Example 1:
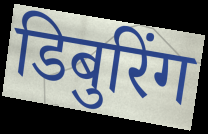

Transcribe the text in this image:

डिबुरिंग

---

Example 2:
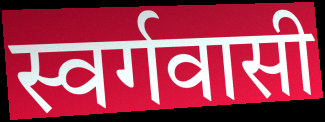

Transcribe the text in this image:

स्‍वर्गवासी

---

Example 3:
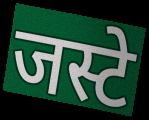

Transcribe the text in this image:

जस्टे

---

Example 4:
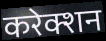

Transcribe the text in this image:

करेक्शन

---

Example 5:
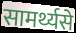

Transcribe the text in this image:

सामर्थ्यसे